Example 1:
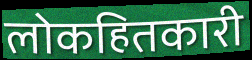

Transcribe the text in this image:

लोकहितकारी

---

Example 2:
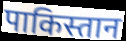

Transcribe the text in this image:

पाकिस्तान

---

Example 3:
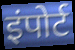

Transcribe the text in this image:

इंपोर्ट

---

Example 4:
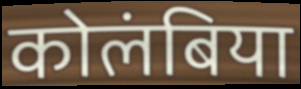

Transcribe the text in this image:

कोलंबिया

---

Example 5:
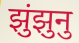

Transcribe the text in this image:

झुंझुनु